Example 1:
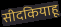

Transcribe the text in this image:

सीदकियाहू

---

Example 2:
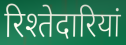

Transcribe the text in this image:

रिश्तेदारियां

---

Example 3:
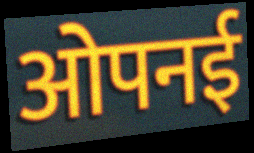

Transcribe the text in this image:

ओपनई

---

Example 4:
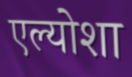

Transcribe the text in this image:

एल्योशा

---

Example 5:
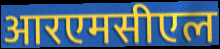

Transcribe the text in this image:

आरएमसीएल